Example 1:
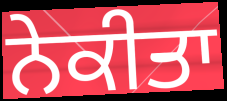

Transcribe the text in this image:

ਨੇਕੀਤਾ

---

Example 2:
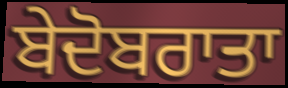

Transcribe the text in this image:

ਬੇਦੋਬਰਾਤਾ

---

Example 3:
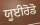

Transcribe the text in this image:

ਯੂਈਰੋਡੋ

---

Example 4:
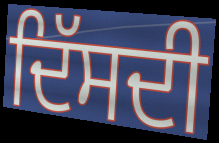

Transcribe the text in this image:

ਦਿੱਸਦੀ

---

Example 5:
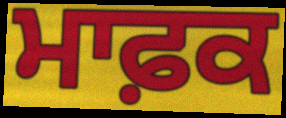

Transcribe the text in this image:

ਮਾਫ਼ਕ